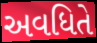
અવધિતે